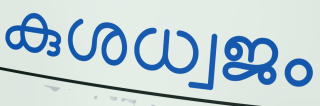
കുശധ്വജം